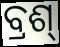
ବ୍ରଶ୍